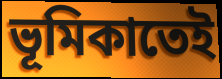
ভূমিকাতেই